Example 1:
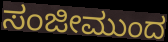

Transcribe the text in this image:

ಸಂಜೀಮುಂದ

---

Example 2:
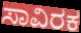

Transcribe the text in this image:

ಸಾವಿರಕ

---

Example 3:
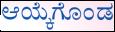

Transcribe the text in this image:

ಆಯ್ಕೆಗೊಂಡ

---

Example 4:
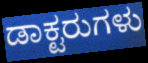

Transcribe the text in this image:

ಡಾಕ್ಟರುಗಳು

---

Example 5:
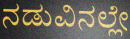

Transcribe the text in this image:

ನಡುವಿನಲ್ಲೇ